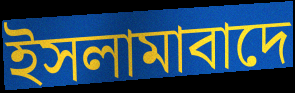
ইসলামাবাদে